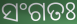
ସଂଗତଃ